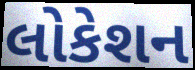
લોકેશન